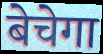
बेचेगा